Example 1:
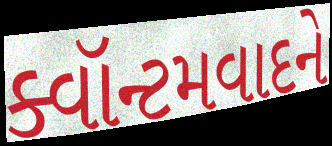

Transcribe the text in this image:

ક્વૉન્ટમવાદને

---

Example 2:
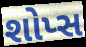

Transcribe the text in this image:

શોપ્સ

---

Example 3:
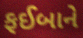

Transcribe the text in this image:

ફઈબાને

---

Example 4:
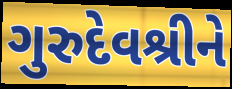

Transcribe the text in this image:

ગુરુદેવશ્રીને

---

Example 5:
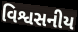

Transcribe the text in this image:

વિશ્વસનીય